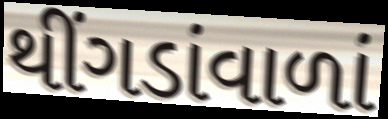
થીંગડાંવાળાં